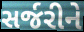
સર્જરીને